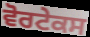
ਵੋਰਟੇਕਸ